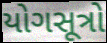
યોગસૂત્રો